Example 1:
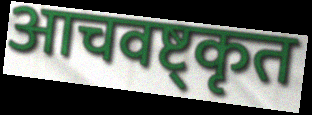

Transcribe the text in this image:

आचवष्ट्कृत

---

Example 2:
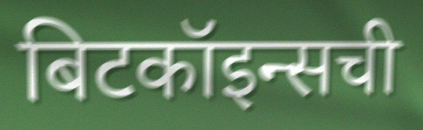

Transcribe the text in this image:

बिटकॉइन्सची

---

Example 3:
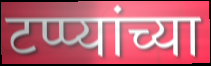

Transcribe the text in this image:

टप्प्यांच्या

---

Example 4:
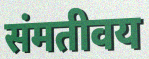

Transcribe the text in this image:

संमतीवय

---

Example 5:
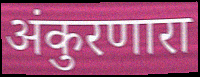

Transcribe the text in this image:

अंकुरणारा